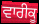
ਵਾਰੀਕੂ